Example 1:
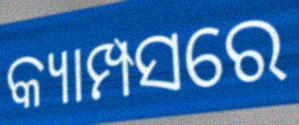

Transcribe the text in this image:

କ୍ୟାମ୍ପସରେ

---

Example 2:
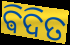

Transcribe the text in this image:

ଵିଦିତ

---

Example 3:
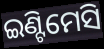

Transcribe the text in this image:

ଇଣ୍ଟିମେସି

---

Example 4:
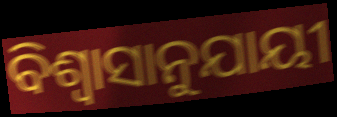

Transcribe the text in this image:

ବିଶ୍ୱାସାନୁଯାୟୀ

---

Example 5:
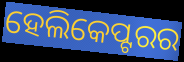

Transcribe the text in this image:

ହେଲିକେପ୍ଟରର